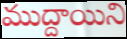
ముద్దాయిని